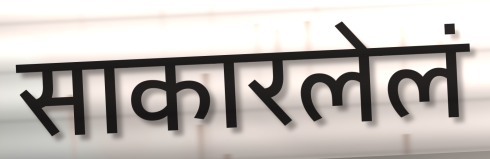
साकारलेलं